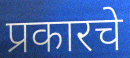
प्रकारचे